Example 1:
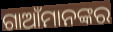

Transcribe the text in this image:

ଗାଆଁମାନଙ୍କର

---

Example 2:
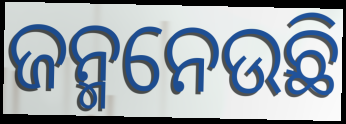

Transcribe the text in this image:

ଜନ୍ମନେଉଛି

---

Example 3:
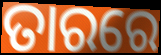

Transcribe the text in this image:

ତାରରେ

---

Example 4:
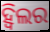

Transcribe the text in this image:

ହ୍ୱିଲର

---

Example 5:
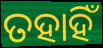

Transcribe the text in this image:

ତହାହିଁ